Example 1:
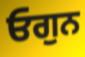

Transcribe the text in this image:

ਓਗੁਨ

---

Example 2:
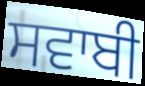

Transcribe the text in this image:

ਸਵਾਬੀ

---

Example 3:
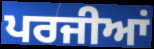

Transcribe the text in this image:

ਪਰਜੀਆਂ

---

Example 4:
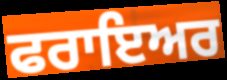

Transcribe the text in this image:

ਫਰਾਇਅਰ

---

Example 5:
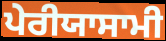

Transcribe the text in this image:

ਪੇਰੀਯਾਸਾਮੀ